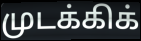
முடக்கிக்